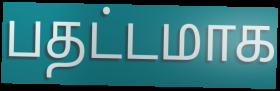
பதட்டமாக